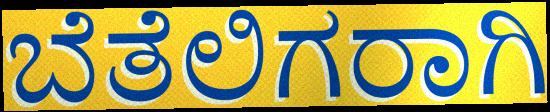
ಬೆತೆಲಿಗರಾಗಿ